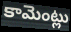
కామెంట్లు